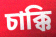
চাক্কি